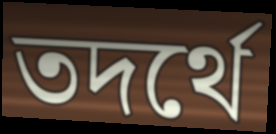
তদর্থে